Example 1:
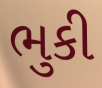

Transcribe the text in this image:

ભુકી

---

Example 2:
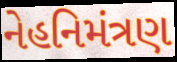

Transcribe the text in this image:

નેહનિમંત્રણ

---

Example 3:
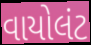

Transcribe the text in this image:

વાયોલંટ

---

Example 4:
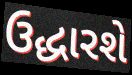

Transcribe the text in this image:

ઉદ્ધારશે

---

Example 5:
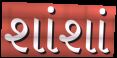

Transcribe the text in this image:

શાંશાં